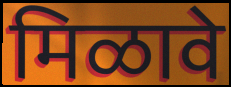
मिळावे